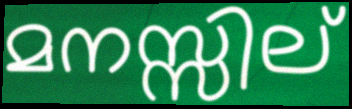
മനസ്സില്